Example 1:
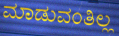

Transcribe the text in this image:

ಮಾಡುವಂತಿಲ್ಲ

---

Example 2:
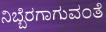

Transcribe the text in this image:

ನಿಬ್ಬೆರಗಾಗುವಂತೆ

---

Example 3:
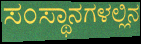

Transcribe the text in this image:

ಸಂಸ್ಥಾನಗಳಲ್ಲಿನ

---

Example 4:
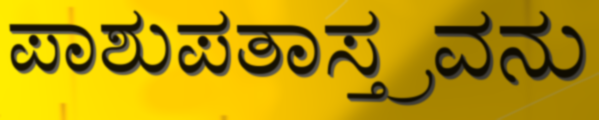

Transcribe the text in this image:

ಪಾಶುಪತಾಸ್ತ್ರವನು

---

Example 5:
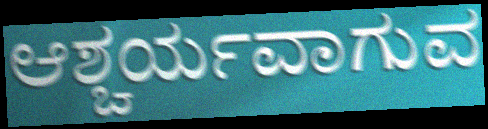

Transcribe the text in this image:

ಆಶ್ಚರ್ಯವಾಗುವ